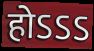
होऽऽऽ